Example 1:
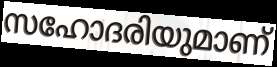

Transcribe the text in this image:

സഹോദരിയുമാണ്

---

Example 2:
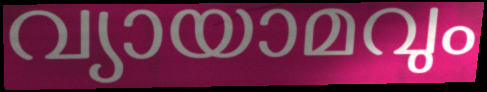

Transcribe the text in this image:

വ്യായാമവും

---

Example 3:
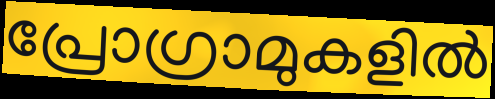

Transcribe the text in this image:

പ്രോഗ്രാമുകളിൽ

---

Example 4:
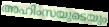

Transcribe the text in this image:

അഹിംസയുടെയും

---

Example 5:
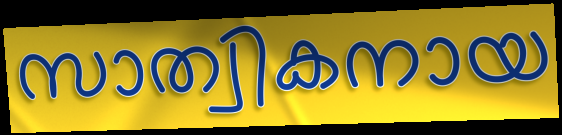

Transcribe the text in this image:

സാത്വികനായ